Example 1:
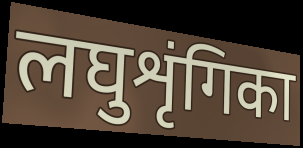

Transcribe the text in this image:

लघुशृंगिका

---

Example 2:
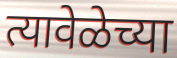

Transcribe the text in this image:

त्यावेळेच्या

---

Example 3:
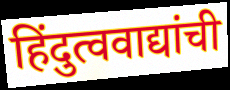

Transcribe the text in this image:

हिंदुत्ववाद्यांची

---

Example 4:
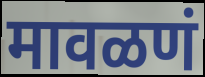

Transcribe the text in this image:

मावळणं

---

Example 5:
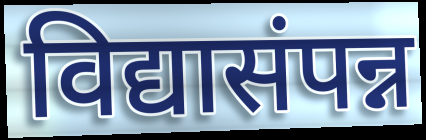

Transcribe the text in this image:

विद्यासंपन्न